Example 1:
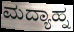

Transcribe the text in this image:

ಮದ್ಯಾಹ್ನ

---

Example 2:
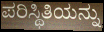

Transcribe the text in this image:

ಪರಿಸ್ಥಿತಿಯನ್ನು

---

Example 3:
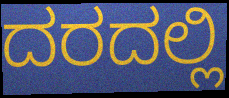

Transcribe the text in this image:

ದರದಲ್ಲಿ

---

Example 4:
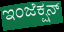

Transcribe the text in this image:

ಇಂಜೆಕ್ಷನ್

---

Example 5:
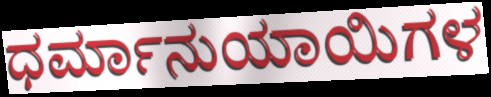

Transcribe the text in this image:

ಧರ್ಮಾನುಯಾಯಿಗಳ